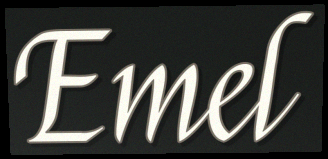
Emel